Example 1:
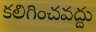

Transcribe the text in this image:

కలిగించవద్దు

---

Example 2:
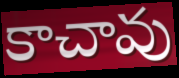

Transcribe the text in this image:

కాచావు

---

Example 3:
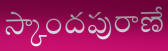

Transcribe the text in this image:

స్కాందపురాణే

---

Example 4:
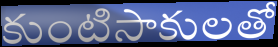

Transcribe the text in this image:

కుంటిసాకులతో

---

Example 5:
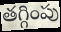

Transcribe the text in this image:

తగ్గింపు